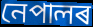
নেপালৰ